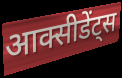
आक्सीडेंट्स